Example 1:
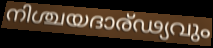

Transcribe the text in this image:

നിശ്ചയദാര്ഢ്യവും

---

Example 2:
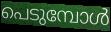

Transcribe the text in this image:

പെടുമ്പോൾ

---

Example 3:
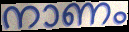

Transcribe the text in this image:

നാണം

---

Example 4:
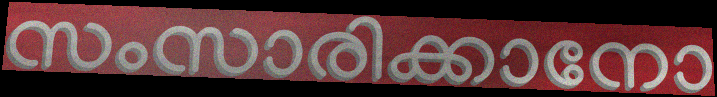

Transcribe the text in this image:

സംസാരിക്കാനോ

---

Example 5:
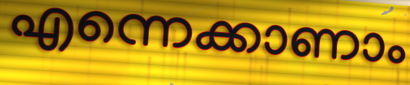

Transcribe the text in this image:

എന്നെക്കാണാം